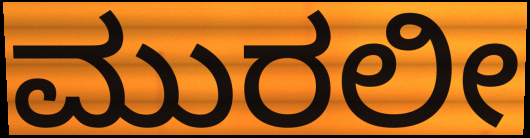
ಮುರಲೀ